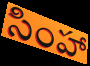
సింహా